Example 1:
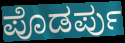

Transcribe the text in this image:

ಪೊಡರ್ಪು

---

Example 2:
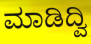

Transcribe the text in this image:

ಮಾಡಿದ್ವಿ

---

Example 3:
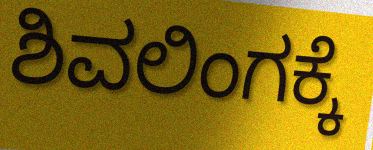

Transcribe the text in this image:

ಶಿವಲಿಂಗಕ್ಕೆ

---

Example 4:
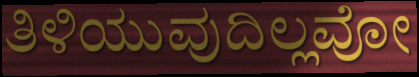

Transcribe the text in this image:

ತಿಳಿಯುವುದಿಲ್ಲವೋ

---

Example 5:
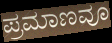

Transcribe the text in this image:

ಪ್ರಮಾಣವೂ